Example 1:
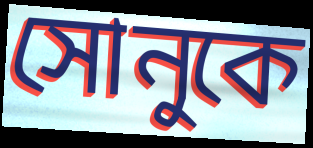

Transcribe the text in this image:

সোনুকে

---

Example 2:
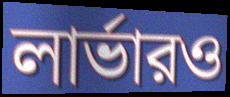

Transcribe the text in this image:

লার্ভারও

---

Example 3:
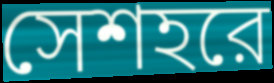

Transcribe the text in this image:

সেশহরে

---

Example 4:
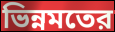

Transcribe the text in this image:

ভিন্নমতের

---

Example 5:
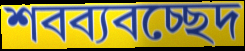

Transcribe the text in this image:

শবব্যবচ্ছেদ